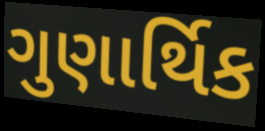
ગુણાર્થિક